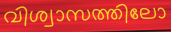
വിശ്വാസത്തിലോ